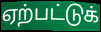
ஏற்பட்டுக்